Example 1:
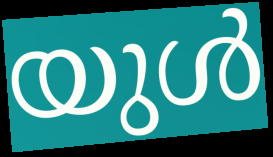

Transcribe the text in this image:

യുൾ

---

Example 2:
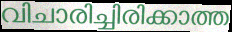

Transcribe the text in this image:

വിചാരിച്ചിരിക്കാത്ത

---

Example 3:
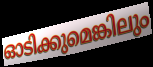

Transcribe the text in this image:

ഓടിക്കുമെങ്കിലും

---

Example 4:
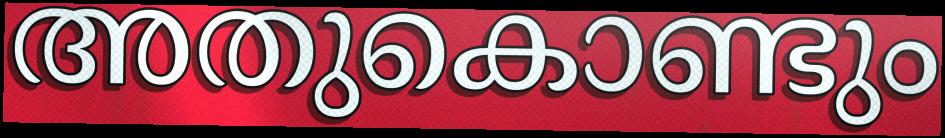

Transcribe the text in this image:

അതുകൊണ്ടും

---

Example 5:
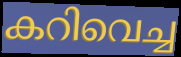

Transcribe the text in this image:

കറിവെച്ച